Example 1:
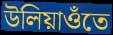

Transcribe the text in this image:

উলিয়াওঁতে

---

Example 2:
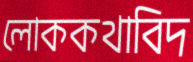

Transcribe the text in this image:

লোককথাবিদ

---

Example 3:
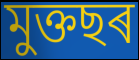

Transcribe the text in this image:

মুক্তছৰ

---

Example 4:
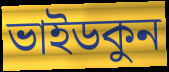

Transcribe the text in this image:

ভাইডকুন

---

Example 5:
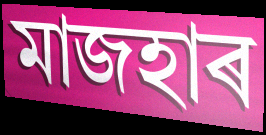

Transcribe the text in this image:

মাজহাৰ